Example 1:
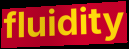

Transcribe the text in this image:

fluidity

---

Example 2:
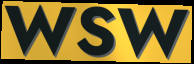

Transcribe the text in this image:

WSW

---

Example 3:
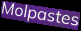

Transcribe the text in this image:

Molpastes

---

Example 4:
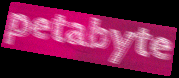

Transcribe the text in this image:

petabyte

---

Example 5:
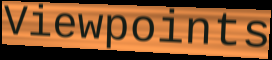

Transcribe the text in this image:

Viewpoints